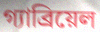
গ্যাব্রিয়েল